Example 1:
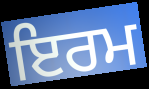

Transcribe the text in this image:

ਇਰਮ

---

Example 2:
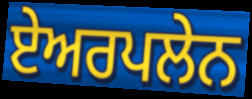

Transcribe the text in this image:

ਏਅਰਪਲੇਨ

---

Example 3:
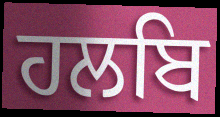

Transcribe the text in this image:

ਹਲਬਿ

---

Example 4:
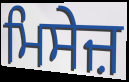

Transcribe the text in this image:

ਮਿਸੇਜ਼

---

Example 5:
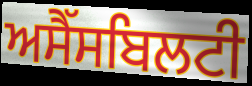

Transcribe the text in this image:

ਅਸੈੱਸਬਿਲਟੀ